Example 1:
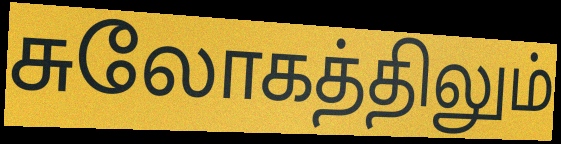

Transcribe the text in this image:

சுலோகத்திலும்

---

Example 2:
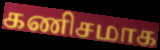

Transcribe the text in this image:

கணிசமாக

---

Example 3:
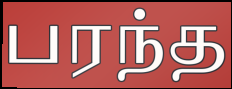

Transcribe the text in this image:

பரந்த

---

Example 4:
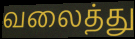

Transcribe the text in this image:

வலைத்து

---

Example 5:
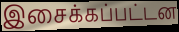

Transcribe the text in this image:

இசைக்கப்பட்டன